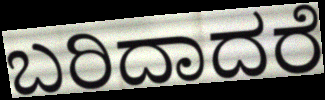
ಬರಿದಾದರೆ